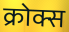
क्रोक्स